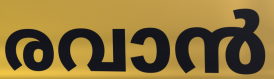
രവാൻ